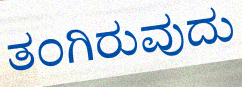
ತಂಗಿರುವುದು